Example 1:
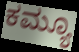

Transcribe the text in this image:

ಕಮ್ಯೂ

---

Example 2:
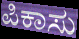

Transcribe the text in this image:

ಪಿಕಾಸು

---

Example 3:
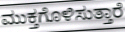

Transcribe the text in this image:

ಮುಕ್ತಗೊಳಿಸುತ್ತಾರೆ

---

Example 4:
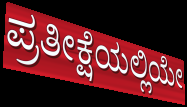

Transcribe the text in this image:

ಪ್ರತೀಕ್ಷೆಯಲ್ಲಿಯೇ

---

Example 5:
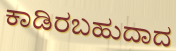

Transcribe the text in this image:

ಕಾಡಿರಬಹುದಾದ